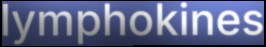
lymphokines